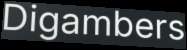
Digambers